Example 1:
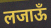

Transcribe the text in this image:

लजाऊँ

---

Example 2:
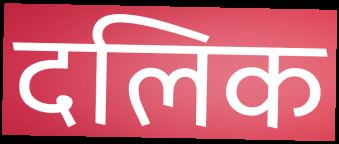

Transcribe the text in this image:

दलिक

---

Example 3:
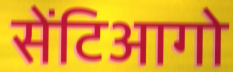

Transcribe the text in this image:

सेंटिआगो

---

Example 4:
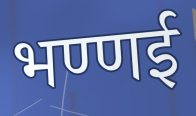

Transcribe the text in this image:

भण्णई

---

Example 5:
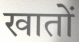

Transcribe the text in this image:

खातों